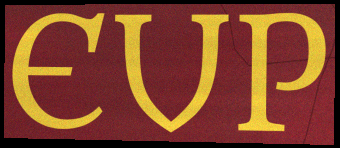
EUP